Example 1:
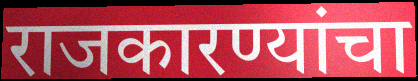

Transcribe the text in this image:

राजकारण्यांचा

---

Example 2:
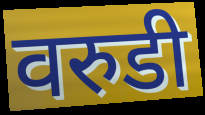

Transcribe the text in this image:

वरुडी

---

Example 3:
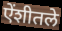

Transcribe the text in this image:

ऐंशीतले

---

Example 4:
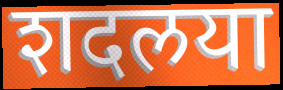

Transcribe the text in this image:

शदलया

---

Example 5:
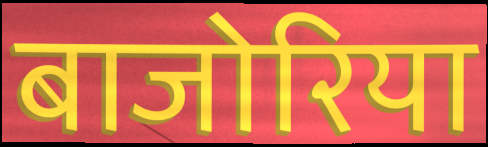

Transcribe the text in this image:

बाजोरिया